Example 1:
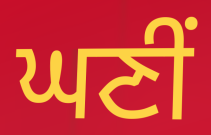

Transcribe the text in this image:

ਘਣੀਂ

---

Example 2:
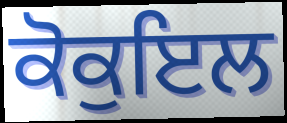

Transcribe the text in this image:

ਕੋਕੁਇਲ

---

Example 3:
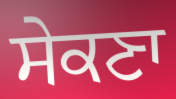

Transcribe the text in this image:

ਸੇਕਣਾ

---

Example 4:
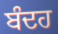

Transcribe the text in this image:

ਬੰਦਹ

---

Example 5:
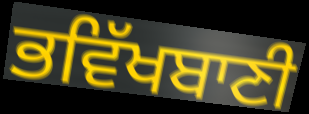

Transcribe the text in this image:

ਭਵਿੱਖਬਾਣੀ